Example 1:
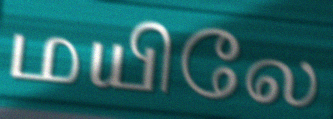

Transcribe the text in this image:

மயிலே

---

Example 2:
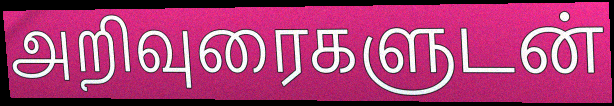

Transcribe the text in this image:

அறிவுரைகளுடன்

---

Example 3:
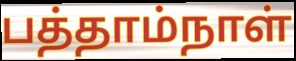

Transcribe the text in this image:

பத்தாம்நாள்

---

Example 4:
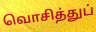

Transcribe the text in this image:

வொசித்துப்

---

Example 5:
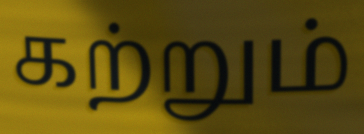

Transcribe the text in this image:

கற்றும்